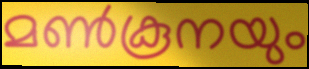
മൺകൂനയും